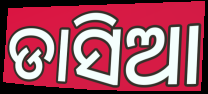
ଡାସିଆ